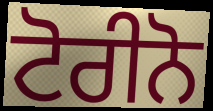
ਟੋਰੀਨੋ